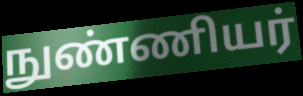
நுண்ணியர்